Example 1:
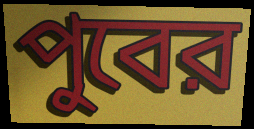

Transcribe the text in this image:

পুবের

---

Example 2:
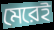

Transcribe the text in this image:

মেরেই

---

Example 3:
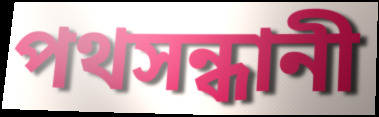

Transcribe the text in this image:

পথসন্ধানী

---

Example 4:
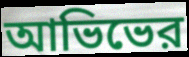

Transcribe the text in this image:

আভিভের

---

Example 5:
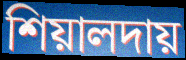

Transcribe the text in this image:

শিয়ালদায়